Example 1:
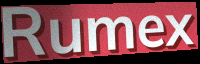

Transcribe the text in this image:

Rumex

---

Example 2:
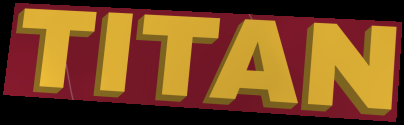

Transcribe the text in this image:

TITAN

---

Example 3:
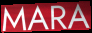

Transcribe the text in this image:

MARA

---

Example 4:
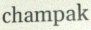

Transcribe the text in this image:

champak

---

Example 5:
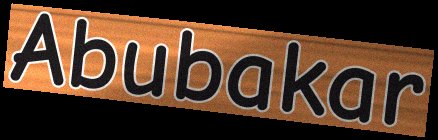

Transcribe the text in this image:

Abubakar